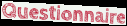
Questionnaire